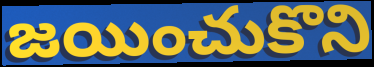
జయించుకొని